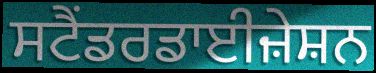
ਸਟੈਂਡਰਡਾਈਜ਼ੇਸ਼ਨ